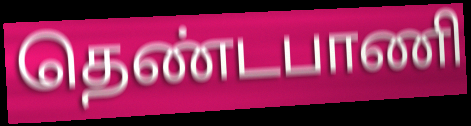
தெண்டபாணி